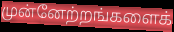
முன்னேற்றங்களைக்